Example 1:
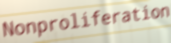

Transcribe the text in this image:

Nonproliferation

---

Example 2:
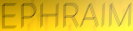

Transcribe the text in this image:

EPHRAIM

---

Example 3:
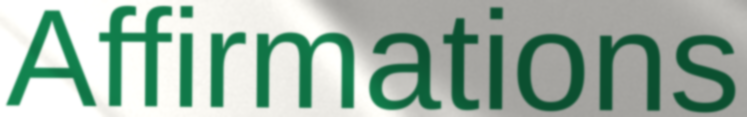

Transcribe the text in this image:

Affirmations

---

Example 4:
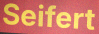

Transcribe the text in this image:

Seifert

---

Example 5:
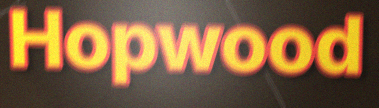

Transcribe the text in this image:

Hopwood